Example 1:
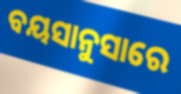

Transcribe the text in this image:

ବୟସାନୁସାରେ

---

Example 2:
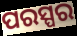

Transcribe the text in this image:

ପରସ୍ପର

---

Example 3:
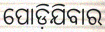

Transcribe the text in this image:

ପୋଡ଼ିଯିବାର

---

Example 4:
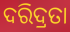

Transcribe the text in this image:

ଦରିଦ୍ରତା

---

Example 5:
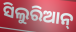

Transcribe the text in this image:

ସିଲୁରିଆନ୍